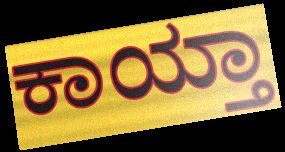
ಕಾಯ್ತಾ